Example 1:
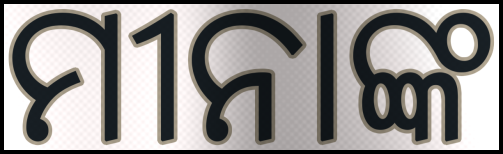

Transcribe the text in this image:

ମୀନାଙ୍କ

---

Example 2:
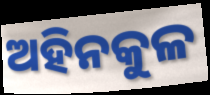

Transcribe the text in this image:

ଅହିନକୁଳ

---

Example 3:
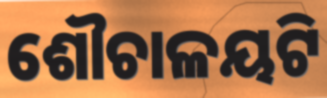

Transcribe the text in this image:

ଶୌଚାଳୟଟି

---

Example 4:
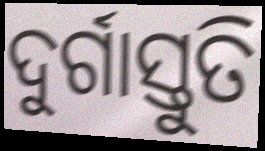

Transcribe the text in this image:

ଦୁର୍ଗାସ୍ତୁତି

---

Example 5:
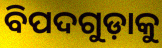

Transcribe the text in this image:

ବିପଦଗୁଡ଼ାକୁ